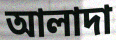
আলাদা